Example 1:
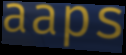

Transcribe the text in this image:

aaps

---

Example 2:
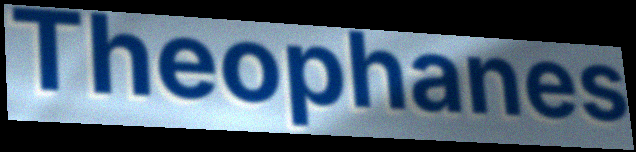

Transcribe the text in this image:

Theophanes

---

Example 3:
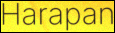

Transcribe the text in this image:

Harapan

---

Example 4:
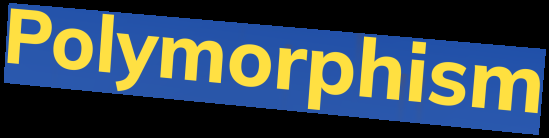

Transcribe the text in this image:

Polymorphism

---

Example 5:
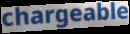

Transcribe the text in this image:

chargeable